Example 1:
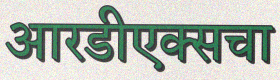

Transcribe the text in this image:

आरडीएक्सचा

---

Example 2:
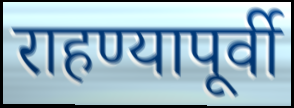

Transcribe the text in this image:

राहण्यापूर्वी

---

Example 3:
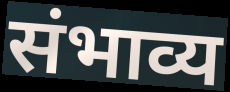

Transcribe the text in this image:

संभाव्य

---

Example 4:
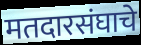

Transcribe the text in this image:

मतदारसंघाचे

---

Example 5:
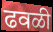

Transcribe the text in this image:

ढवळी